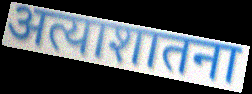
अत्याशातना